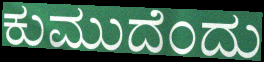
ಕುಮುದೆಂದು